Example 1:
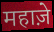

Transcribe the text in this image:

महाज़े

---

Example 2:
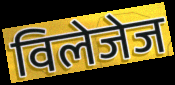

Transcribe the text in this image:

विलेजेज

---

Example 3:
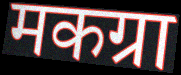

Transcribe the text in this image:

मकग्रा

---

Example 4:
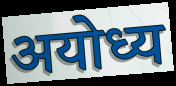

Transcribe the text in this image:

अयोध्य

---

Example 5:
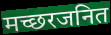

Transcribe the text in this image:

मच्छरजनित